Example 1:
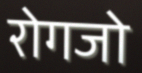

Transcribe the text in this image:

रोगजो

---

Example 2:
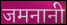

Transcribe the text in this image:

जमनानी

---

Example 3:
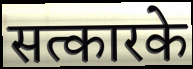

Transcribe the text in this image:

सत्कारके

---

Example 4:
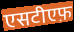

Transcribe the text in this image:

एसटीएफ़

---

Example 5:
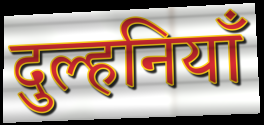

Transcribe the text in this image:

दुल्हनियाँ